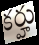
కర్హు